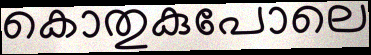
കൊതുകുപോലെ